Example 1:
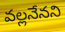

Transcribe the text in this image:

వల్లనేనని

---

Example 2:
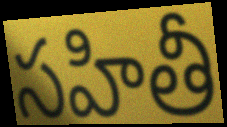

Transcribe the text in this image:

సహితీ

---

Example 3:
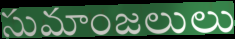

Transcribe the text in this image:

సుమాంజలులు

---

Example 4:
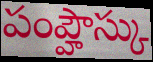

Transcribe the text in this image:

పంప్హౌస్కు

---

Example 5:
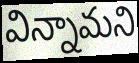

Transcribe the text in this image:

విన్నామని